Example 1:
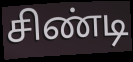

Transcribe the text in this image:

சிண்டி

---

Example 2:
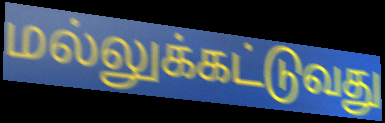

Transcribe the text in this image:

மல்லுக்கட்டுவது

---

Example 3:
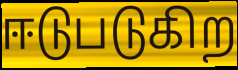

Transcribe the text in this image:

ஈடுபடுகிற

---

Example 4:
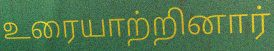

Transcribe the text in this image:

உரையாற்றினார்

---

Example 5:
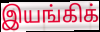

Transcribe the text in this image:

இயங்கிக்